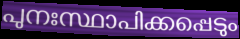
പുനഃസ്ഥാപിക്കപ്പെടും